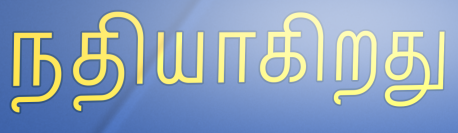
நதியாகிறது